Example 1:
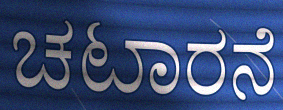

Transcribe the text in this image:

ಚಟಾರನೆ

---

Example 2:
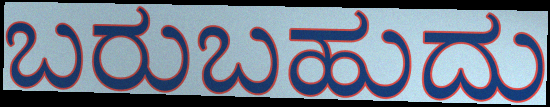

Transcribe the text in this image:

ಬರುಬಹುದು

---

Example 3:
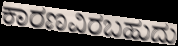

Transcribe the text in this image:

ಕಾರಣವಿರಬಹುದು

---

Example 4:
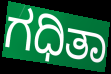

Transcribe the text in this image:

ಗಧಿತಾ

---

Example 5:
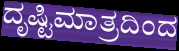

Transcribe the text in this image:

ದೃಷ್ಟಿಮಾತ್ರದಿಂದ